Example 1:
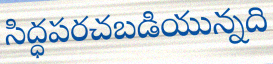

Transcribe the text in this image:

సిద్ధపరచబడియున్నది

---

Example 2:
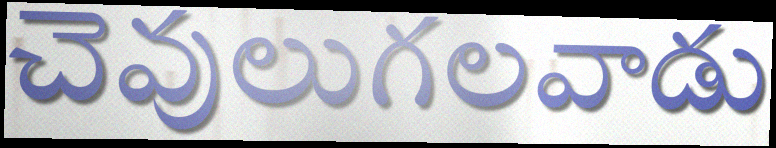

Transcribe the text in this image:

చెవులుగలవాడు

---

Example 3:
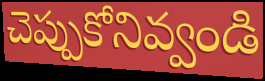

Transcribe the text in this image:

చెప్పుకోనివ్వండి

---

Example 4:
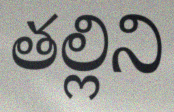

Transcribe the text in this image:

తల్లిని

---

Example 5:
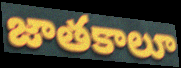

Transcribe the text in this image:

జాతకాలూ